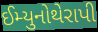
ઈમ્યુનોથેરાપી